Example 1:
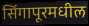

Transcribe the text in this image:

सिंगापूरमधील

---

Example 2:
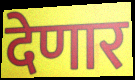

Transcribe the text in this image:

देणार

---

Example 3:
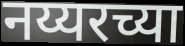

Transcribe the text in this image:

नय्यरच्या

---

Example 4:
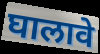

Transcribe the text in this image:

घालावे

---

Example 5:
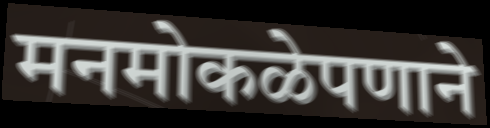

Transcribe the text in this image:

मनमोकळेपणाने